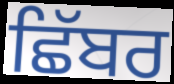
ਛਿੱਬਰ